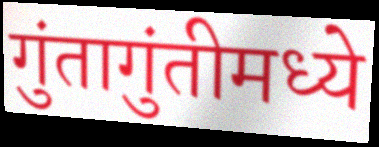
गुंतागुंतीमध्ये